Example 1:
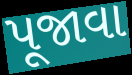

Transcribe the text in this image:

પૂજાવા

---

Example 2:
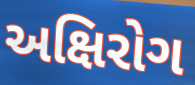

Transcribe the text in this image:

અક્ષિરોગ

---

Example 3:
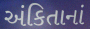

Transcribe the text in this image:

અંકિતાનાં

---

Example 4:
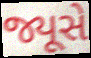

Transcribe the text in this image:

જ્યૂસે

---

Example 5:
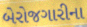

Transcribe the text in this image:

બેરોજગારીના